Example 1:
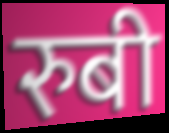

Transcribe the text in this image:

रुबी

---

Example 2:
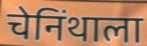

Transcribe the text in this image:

चेनिंथाला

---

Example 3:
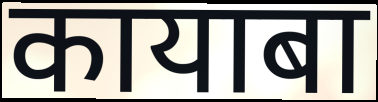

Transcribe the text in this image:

कायाबा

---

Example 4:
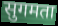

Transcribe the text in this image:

सुगमता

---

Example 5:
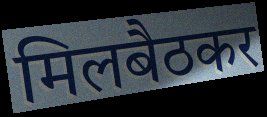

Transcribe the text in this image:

मिलबैठकर